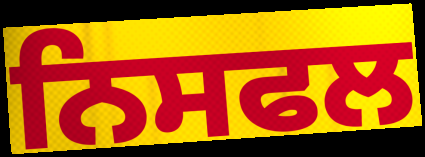
ਨਿਸਫਲ